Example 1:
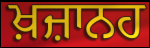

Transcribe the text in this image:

ਖ਼ਜ਼ਾਨਹ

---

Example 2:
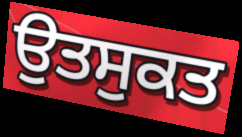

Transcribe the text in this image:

ਉਤਸੁਕਤ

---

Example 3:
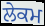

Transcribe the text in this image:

ਲੇਕਮ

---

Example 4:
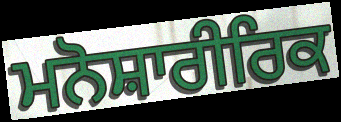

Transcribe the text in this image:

ਮਨੋਸ਼ਾਰੀਰਿਕ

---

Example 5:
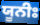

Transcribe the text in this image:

ਯੂਨੀਃ